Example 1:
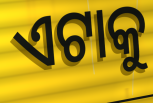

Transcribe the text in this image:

ଏଟାକୁ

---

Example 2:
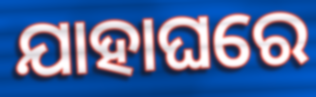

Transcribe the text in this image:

ଯାହାଘରେ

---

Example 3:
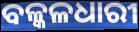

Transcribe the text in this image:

ବଳ୍କଳଧାରୀ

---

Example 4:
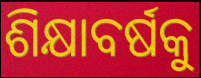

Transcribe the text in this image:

ଶିକ୍ଷାବର୍ଷକୁ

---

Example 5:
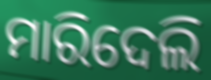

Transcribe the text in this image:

ମାରିଦେଲି